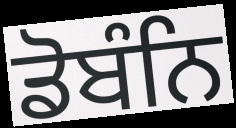
ਡੋਬੰਨਿ